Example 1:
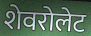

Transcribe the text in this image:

शेवरोलेट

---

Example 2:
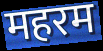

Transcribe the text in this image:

महरम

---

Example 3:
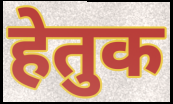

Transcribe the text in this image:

हेतुक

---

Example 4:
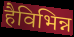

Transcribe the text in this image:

हैविभिन्न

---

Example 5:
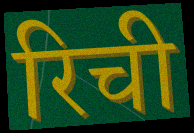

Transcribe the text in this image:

रिची